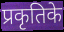
प्रकृतिके